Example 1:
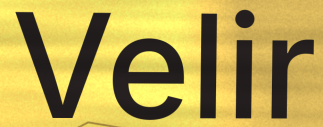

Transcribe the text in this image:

Velir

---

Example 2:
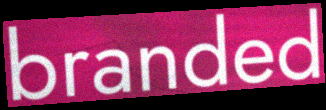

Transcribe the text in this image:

branded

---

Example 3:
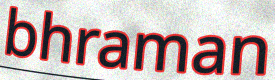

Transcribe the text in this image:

bhraman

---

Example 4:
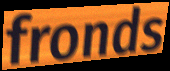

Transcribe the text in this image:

fronds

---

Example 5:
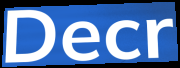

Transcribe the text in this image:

Decr